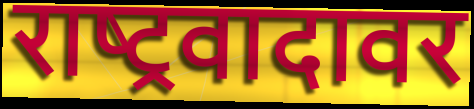
राष्ट्रवादावर